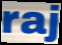
raj